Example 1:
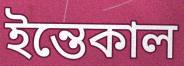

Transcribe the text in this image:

ইন্তেকাল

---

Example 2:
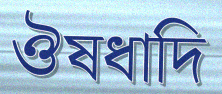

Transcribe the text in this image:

ঔষধাদি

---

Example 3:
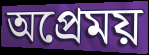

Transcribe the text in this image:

অপ্রেময়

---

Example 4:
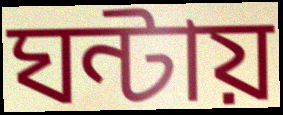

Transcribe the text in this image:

ঘন্টায়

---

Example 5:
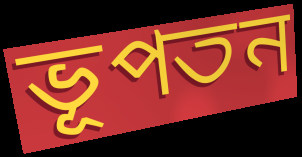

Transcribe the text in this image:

ভূপতন